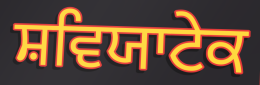
ਸ਼ਵਿਯਾਟੇਕ